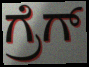
ಗ್ರೆಗ್